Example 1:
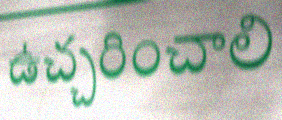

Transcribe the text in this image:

ఉచ్చరించాలి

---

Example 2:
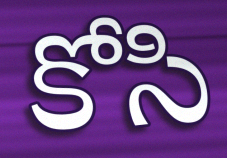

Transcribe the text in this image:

కోసి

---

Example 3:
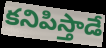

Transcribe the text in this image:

కనిపిస్తాడే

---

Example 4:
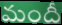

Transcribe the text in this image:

మందీ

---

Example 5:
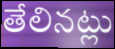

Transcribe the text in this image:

తేలినట్లు